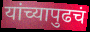
यांच्यापुढचं